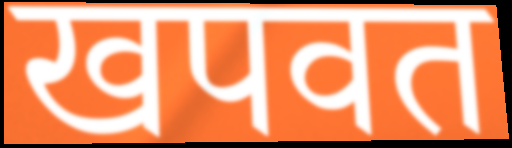
खपवत